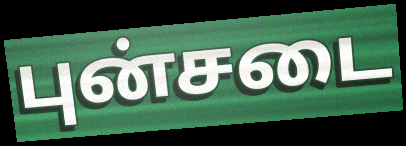
புன்சடை